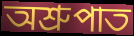
অশ্রুপাত